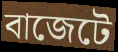
বাজেটে